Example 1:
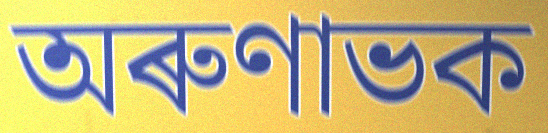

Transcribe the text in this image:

অৰুণাভক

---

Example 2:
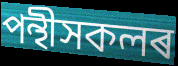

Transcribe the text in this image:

পন্থীসকলৰ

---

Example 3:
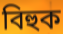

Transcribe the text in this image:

বিহুক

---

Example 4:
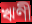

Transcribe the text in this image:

ঋণী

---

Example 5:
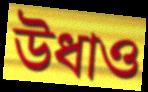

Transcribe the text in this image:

উধাও